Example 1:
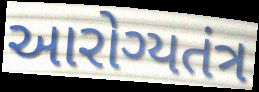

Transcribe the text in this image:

આરોગ્યતંત્ર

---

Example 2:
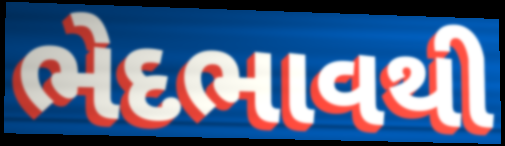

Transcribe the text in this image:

ભેદભાવથી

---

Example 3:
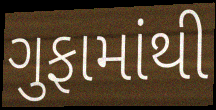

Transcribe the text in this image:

ગુફામાંથી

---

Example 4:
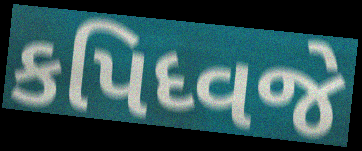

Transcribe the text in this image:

કપિધ્વજે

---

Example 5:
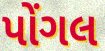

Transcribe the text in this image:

પોંગલ